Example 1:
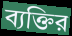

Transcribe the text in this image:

ব্যক্তির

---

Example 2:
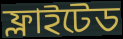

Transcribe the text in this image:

ফ্লাইটেড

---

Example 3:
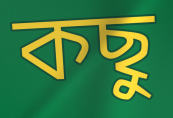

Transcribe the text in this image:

কছু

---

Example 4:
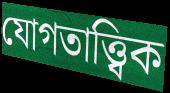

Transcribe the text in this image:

যোগতাত্ত্বিক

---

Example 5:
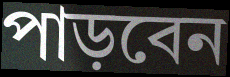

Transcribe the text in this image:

পাড়বেন